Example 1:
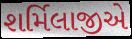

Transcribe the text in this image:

શર્મિલાજીએ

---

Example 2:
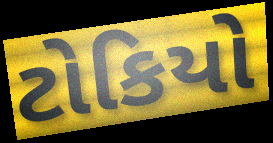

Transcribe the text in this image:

ટોકિયો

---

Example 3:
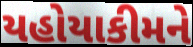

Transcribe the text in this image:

યહોયાકીમને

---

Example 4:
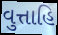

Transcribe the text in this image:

વુત્તાહિ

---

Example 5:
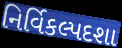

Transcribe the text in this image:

નિર્વિકલ્પદશા